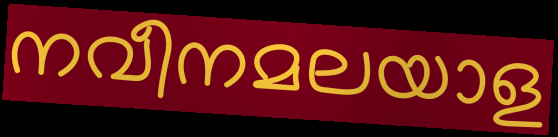
നവീനമലയാള